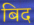
बिद